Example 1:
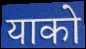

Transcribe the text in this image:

याको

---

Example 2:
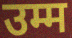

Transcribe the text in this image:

उम्म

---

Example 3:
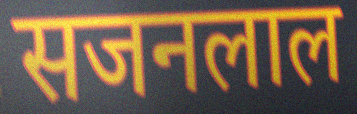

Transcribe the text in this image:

सजनलाल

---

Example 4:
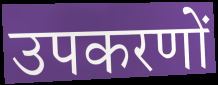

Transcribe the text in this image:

उपकरणों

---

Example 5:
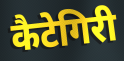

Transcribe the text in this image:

कैटेगिरी